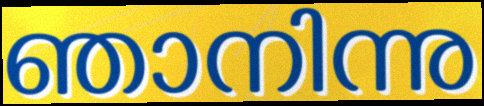
ഞാനിന്നു